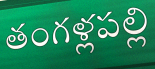
తంగళ్లపల్లి